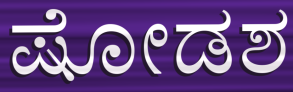
ಷೋಡಶ